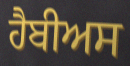
ਹੈਬੀਅਸ